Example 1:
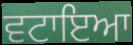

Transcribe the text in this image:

ਵਟਾਇਆ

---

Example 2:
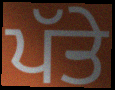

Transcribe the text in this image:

ਪੱਤੇ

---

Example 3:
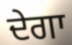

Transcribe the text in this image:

ਦੇਗਾ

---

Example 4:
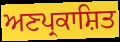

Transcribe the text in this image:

ਅਣਪ੍ਰਕਾਸ਼ਿਤ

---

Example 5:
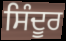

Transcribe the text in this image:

ਸਿੰਦੂਰ